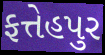
ફત્તેહપુર